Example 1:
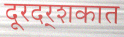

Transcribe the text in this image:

दूरदर्शकात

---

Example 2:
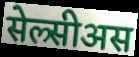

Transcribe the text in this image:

सेल्सीअस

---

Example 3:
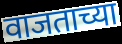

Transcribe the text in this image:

वाजताच्या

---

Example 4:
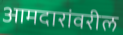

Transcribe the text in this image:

आमदारांवरील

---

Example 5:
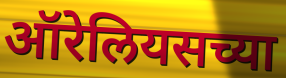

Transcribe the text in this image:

ऑरेलियसच्या